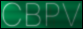
CBPV